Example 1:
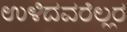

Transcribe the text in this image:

ಉಳಿದವರೆಲ್ಲರ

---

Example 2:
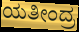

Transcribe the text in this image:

ಯತೀಂದ್ರ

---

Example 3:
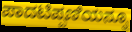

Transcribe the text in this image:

ಪಾದಟಿಪ್ಪಣಿಯನ್ನೂ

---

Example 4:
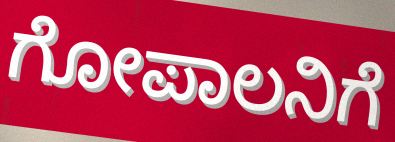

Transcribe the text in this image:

ಗೋಪಾಲನಿಗೆ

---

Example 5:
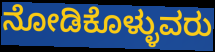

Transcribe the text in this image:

ನೋಡಿಕೊಳ್ಳುವರು